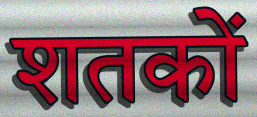
शतकों